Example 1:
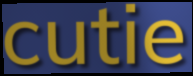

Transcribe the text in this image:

cutie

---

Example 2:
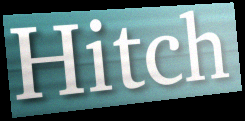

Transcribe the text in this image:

Hitch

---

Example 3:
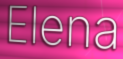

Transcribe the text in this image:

Elena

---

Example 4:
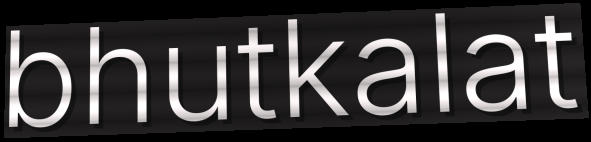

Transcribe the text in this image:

bhutkalat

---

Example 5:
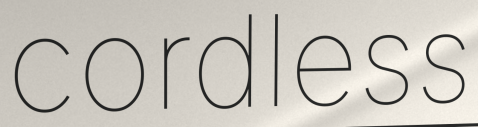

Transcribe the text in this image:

cordless